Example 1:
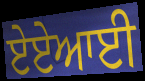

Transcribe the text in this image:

ਏਏਆਈ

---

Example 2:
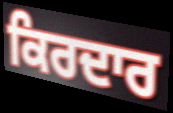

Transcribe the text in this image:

ਕਿਰਦਾਰ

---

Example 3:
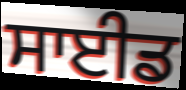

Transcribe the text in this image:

ਸਾਈਡ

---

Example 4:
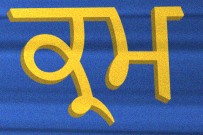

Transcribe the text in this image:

ਕ੍ਰਮ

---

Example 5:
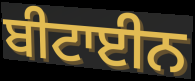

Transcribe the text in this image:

ਬੀਟਾਈਨ